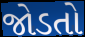
જોડતો